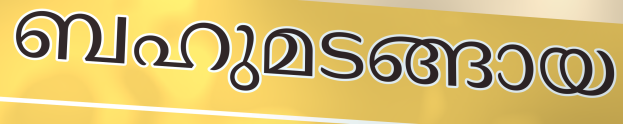
ബഹുമടങ്ങായ